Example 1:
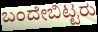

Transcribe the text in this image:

ಬಂದೇಬಿಟ್ಟರು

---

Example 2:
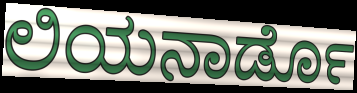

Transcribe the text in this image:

ಲಿಯನಾರ್ಡೊ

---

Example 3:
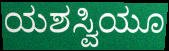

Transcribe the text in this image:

ಯಶಸ್ವಿಯೂ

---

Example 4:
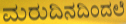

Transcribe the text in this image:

ಮರುದಿನದಿಂದಲೆ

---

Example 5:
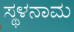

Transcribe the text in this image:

ಸ್ಥಳನಾಮ